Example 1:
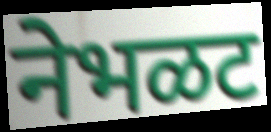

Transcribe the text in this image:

नेभळट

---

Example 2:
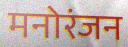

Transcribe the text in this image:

मनोरंजन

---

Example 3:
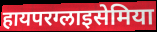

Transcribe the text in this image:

हायपरग्लाइसेमिया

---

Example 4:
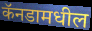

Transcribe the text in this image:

कॅनडामधील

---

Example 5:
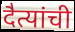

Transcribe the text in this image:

दैत्यांची